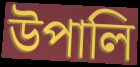
উপালি